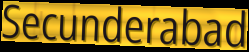
Secunderabad